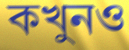
কখুনও